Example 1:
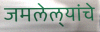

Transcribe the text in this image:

जमलेल्यांचे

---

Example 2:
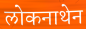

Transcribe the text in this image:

लोकनाथेन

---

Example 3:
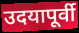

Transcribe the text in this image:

उदयापूर्वी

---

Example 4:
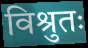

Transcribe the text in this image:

विश्रुतः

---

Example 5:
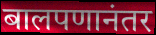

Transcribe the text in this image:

बालपणानंतर